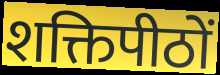
शक्तिपीठों